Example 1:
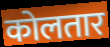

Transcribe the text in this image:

कोलतार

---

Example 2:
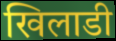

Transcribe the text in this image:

खिलाडी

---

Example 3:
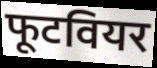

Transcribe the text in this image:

फूटवियर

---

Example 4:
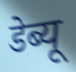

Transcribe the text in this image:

डेब्यू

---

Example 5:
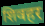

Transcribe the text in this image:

शिवहर